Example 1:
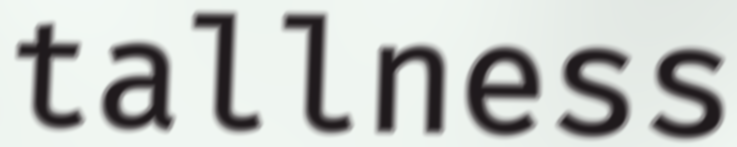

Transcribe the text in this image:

tallness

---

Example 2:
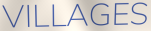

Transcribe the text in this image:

VILLAGES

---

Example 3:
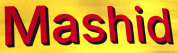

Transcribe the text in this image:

Mashid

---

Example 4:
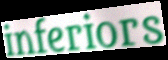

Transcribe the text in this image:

inferiors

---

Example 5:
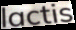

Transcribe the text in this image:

lactis